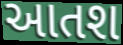
આતશ